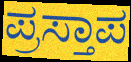
ಪ್ರಸ್ತಾಪ